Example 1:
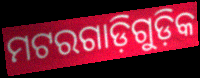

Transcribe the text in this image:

ମଟରଗାଡ଼ିଗୁଡ଼ିକ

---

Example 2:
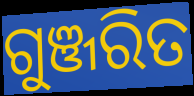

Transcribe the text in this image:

ଗୁଞ୍ଜରିତ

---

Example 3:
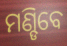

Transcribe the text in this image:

ମଣ୍ଡିବେ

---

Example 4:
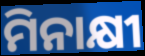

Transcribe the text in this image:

ମିନାକ୍ଷୀ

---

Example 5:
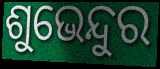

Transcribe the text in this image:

ଶୁଭେନ୍ଦୁର